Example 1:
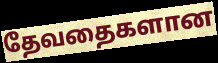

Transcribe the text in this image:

தேவதைகளான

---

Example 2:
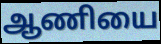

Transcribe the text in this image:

ஆணியை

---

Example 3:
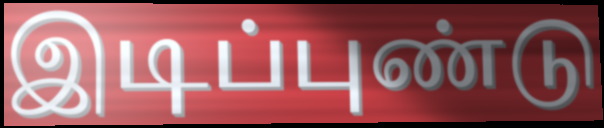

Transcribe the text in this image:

இடிப்புண்டு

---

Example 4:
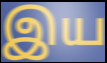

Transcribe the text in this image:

இய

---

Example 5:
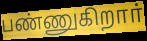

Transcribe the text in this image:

பண்ணுகிறார்